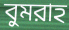
বুমরাহ